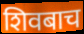
शिवबाच